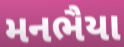
મનભૈયા